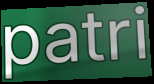
patri